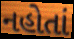
નહોતાં